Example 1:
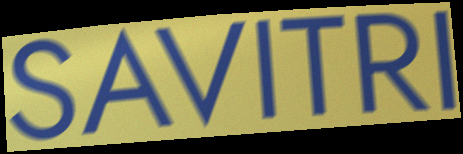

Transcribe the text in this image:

SAVITRI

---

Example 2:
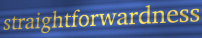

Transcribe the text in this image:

straightforwardness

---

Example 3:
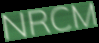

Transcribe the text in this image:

NRCM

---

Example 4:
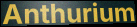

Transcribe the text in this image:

Anthurium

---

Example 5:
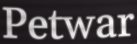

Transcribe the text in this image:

Petwar